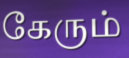
கேரும்